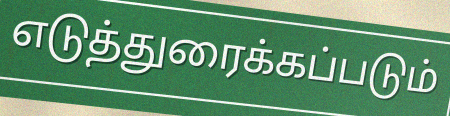
எடுத்துரைக்கப்படும்